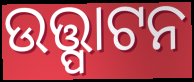
ଉତ୍ତ୍ପାଟନ